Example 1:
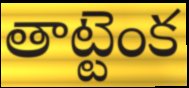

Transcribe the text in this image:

తాట్టెంక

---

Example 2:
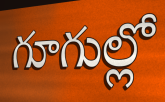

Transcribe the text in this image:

గూగుల్లో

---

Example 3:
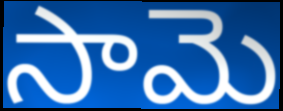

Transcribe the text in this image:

సామె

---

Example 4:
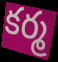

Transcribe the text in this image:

కర్మ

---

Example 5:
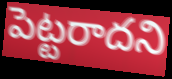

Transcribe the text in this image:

పెట్టరాదని